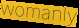
womanly